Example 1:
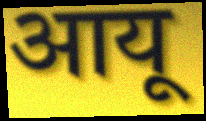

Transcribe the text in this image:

आयू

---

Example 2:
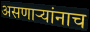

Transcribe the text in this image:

असणार्‍यांनाच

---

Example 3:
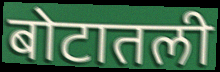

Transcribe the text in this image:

बोटातली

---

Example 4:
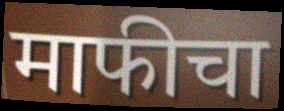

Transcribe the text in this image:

माफीचा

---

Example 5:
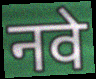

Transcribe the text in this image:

नवे